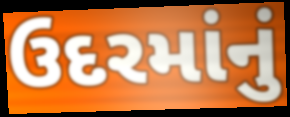
ઉદરમાંનું